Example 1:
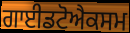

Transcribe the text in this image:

ਗਾਈਡਟੋਐਕਸਮ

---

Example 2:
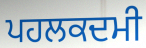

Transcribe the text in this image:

ਪਹਲਕਦਮੀ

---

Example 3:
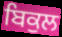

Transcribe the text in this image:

ਬਿਕੁਲ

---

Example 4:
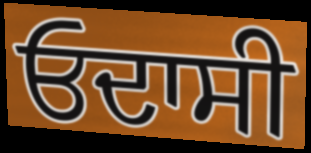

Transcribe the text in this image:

ਓਦਾਸੀ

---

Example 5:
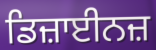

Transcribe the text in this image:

ਡਿਜ਼ਾਈਨਜ਼